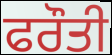
ਫਰੌਤੀ